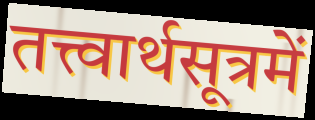
तत्त्वार्थसूत्रमें